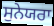
ਸੁਨੇਯਰਾ